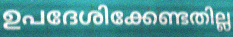
ഉപദേശിക്കേണ്ടതില്ല